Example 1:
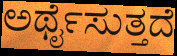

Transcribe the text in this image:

ಅರ್ಥೈಸುತ್ತದೆ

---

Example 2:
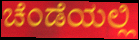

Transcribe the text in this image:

ಚೆಂಡೆಯಲ್ಲಿ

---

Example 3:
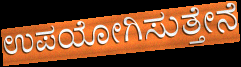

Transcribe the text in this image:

ಉಪಯೋಗಿಸುತ್ತೇನೆ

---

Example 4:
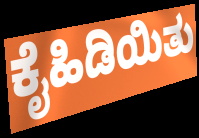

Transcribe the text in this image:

ಕೈಹಿಡಿಯಿತು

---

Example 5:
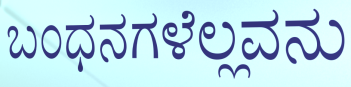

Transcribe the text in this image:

ಬಂಧನಗಳೆಲ್ಲವನು